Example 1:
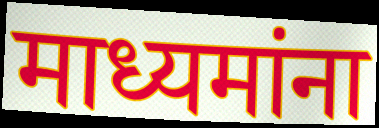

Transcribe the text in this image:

माध्यमांना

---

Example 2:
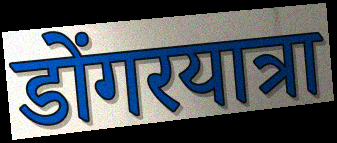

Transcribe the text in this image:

डोंगरयात्रा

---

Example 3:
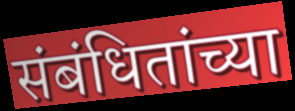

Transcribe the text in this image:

संबंधितांच्या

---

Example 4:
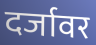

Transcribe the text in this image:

दर्जावर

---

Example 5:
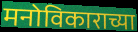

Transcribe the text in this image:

मनोविकाराच्या